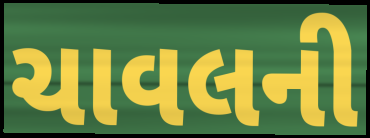
ચાવલની